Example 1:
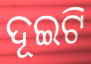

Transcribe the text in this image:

ଦୂଇଟି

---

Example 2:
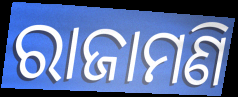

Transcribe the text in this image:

ରାଜାମଣି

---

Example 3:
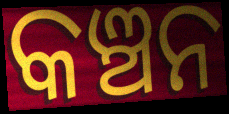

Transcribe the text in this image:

କଞ୍ଚନ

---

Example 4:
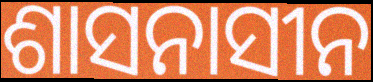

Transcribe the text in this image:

ଶାସନାସୀନ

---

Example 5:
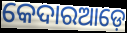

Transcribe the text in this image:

କେଦାରଆଡ଼େ